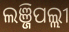
ଲଞ୍ଜିପଲ୍ଲୀ